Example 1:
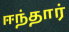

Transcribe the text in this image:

ஈந்தார்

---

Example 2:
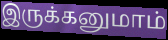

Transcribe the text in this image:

இருக்கனுமாம்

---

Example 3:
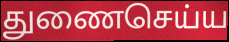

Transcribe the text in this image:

துணைசெய்ய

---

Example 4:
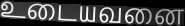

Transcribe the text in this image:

உடையவனை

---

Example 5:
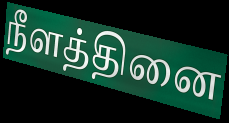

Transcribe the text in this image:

நீளத்தினை